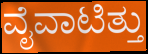
ವೈವಾಟಿತ್ತು